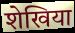
शेखिया